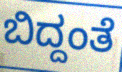
ಬಿದ್ದಂತೆ